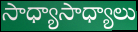
సాధ్యాసాధ్యాలు